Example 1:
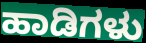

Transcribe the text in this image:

ಹಾಡಿಗಳು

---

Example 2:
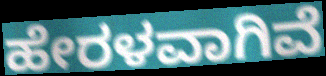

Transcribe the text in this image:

ಹೇರಳವಾಗಿವೆ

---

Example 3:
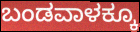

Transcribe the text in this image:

ಬಂಡವಾಳಕ್ಕೂ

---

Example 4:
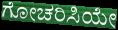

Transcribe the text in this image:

ಗೋಚರಿಸಿಯೇ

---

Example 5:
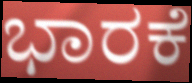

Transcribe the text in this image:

ಭಾರಕೆ